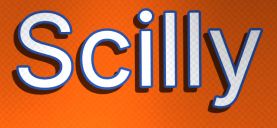
Scilly